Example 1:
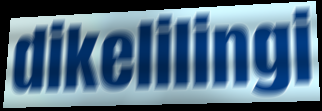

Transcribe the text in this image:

dikelilingi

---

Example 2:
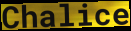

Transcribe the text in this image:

Chalice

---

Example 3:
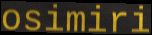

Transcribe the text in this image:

osimiri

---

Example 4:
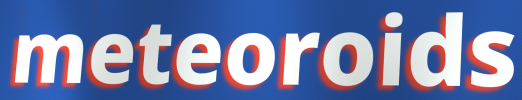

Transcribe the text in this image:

meteoroids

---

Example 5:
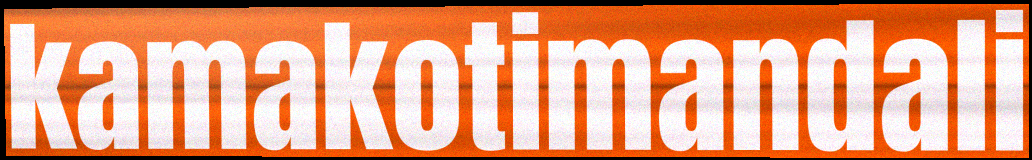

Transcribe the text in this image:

kamakotimandali